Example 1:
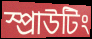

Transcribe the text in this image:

স্প্রাউটিং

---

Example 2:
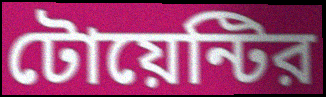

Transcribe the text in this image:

টোয়েন্টির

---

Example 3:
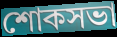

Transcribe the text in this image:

শোকসভা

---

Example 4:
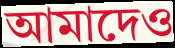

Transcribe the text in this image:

আমাদেও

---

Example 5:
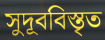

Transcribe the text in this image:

সুদূববিস্তৃত